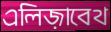
এলিজ়াবেথ